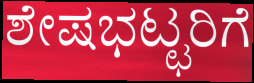
ಶೇಷಭಟ್ಟರಿಗೆ